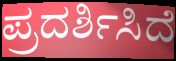
ಪ್ರದರ್ಶಿಸಿದೆ